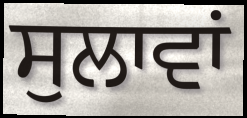
ਸੁਲਾਵਾਂ